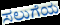
ಸಲುಗೆಯ